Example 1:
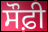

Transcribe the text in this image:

ਸੌਫ਼ੀ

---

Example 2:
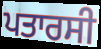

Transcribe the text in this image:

ਪਤਾਰਸੀ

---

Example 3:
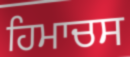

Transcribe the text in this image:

ਹਿਮਾਚਸ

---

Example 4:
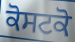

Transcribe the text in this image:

ਕੋਸਟਕੋ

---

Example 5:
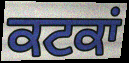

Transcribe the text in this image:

ਕਟਕਾਂ